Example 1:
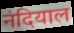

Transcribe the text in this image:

नंदियाल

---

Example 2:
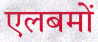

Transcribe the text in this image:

एलबमों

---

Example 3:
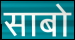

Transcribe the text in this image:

साबो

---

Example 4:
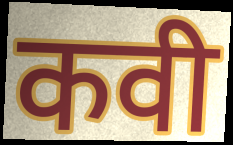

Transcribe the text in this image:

कवी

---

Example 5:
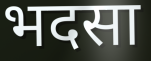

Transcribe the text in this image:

भदसा